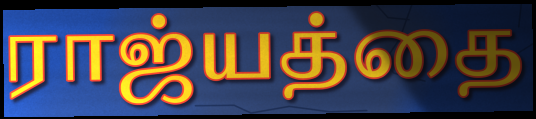
ராஜ்யத்தை